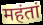
महंतां